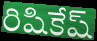
రిషికేష్